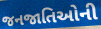
જનજાતિઓની